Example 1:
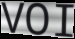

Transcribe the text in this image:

VOI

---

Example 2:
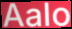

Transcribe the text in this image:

Aalo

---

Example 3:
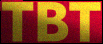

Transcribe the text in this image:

TBT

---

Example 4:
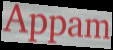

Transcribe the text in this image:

Appam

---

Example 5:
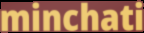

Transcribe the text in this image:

minchati